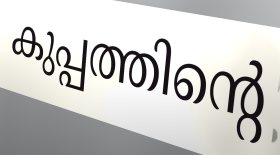
കുപ്പത്തിന്റെ